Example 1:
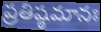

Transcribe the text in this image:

ప్రతిష్ఠమానః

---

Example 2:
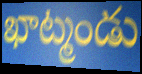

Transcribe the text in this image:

ఖాట్మండు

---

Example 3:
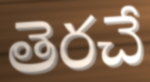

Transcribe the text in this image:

తెరచే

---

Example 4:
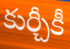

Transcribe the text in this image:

కుర్చీకీ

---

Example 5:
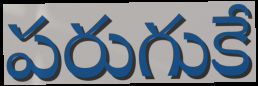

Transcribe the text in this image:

పరుగుకే